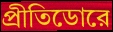
প্রীতিডোরে